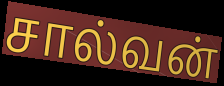
சால்வன்